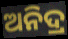
ଅନିଦ୍ର